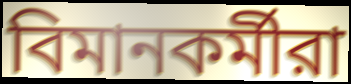
বিমানকর্মীরা